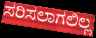
ಸರಿಸಲಾಗಲಿಲ್ಲ